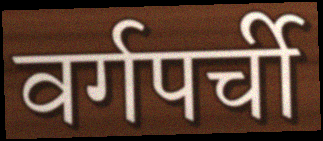
वर्गपर्ची